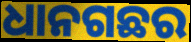
ଧାନଗଛର